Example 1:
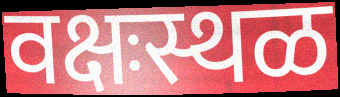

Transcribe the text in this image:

वक्षःस्थळ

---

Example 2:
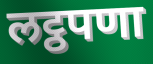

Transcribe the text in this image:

लट्ठपणा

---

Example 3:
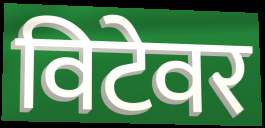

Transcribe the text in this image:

विटेवर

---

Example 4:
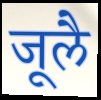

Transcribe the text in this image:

जूलै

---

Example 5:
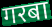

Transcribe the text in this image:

गरबा